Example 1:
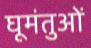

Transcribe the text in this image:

घूमंतुओं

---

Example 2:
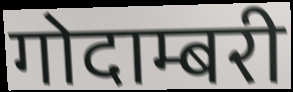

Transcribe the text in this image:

गोदाम्बरी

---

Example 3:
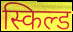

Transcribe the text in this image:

स्किल्ड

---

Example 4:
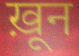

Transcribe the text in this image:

ख़ून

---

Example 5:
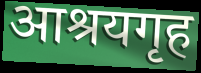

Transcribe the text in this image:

आश्रयगृह